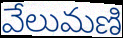
వేలుమణి